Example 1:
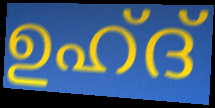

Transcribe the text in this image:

ഉഹ്ദ്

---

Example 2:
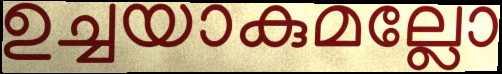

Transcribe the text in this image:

ഉച്ചയാകുമല്ലോ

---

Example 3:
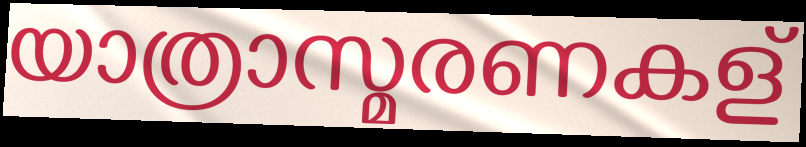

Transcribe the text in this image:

യാത്രാസ്മരണകള്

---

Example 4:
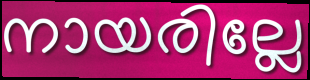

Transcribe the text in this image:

നായരില്ലേ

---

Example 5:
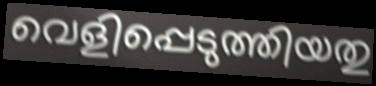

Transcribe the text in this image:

വെളിപ്പെടുത്തിയതു